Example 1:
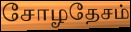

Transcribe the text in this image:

சோழதேசம்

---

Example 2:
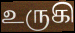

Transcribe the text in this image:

உருகி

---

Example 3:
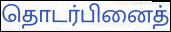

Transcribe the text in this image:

தொடர்பினைத்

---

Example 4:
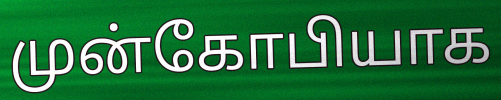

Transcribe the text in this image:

முன்கோபியாக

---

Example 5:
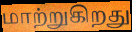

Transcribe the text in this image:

மாற்றுகிறது